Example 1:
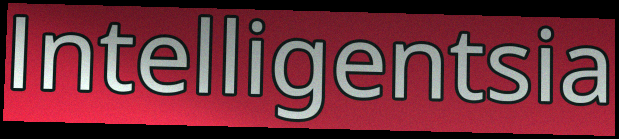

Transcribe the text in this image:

Intelligentsia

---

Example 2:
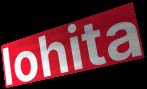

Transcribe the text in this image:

lohita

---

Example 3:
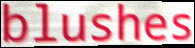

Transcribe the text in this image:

blushes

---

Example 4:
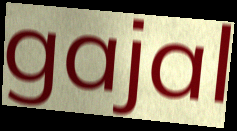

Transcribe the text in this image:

gajal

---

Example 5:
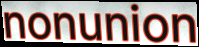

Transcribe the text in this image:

nonunion